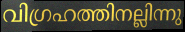
വിഗ്രഹത്തിനല്ലിന്നു